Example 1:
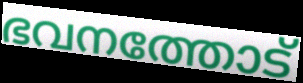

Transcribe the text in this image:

ഭവനത്തോട്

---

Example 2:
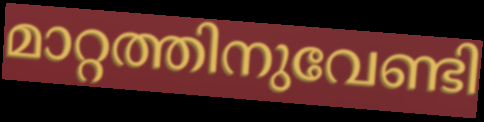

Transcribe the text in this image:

മാറ്റത്തിനുവേണ്ടി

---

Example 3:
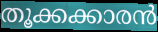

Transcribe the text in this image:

തൂക്കക്കാരൻ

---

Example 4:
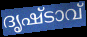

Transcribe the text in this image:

ദൃഷ്ടാവ്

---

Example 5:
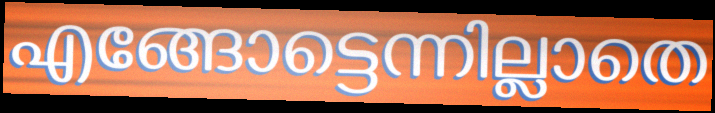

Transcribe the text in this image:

എങ്ങോട്ടെന്നില്ലാതെ